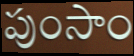
పుంసాం